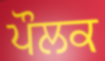
ਪੌਲਕ